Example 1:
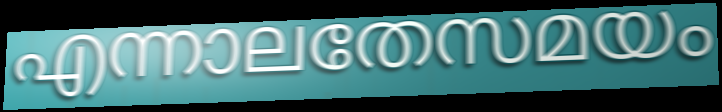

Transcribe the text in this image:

എന്നാലതേസമയം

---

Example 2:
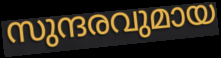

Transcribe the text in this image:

സുന്ദരവുമായ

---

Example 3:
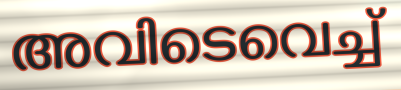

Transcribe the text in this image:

അവിടെവെച്ച്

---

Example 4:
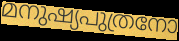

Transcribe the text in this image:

മനുഷ്യപുത്രനോ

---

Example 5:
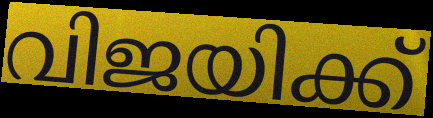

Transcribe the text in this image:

വിജയിക്ക്